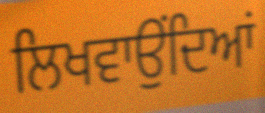
ਲਿਖਵਾਉਂਦਿਆਂ